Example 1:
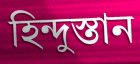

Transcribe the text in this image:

হিন্দুস্তান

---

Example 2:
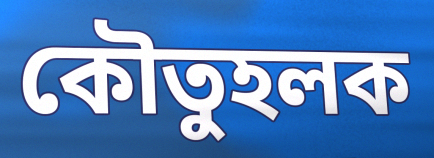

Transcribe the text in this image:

কৌতুহলক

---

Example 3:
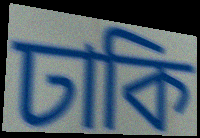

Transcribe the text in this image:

ঢাকি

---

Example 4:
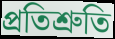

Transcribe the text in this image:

প্ৰতিশ্ৰুতি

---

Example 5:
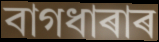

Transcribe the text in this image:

বাগধাৰাৰ